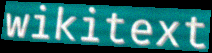
wikitext